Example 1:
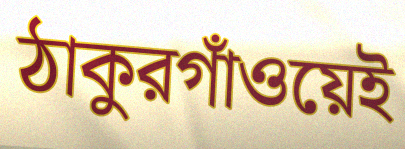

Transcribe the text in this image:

ঠাকুরগাঁওয়েই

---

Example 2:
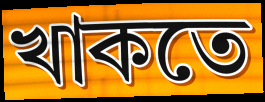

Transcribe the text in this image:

খাকতে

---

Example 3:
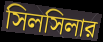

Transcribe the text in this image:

সিলসিলার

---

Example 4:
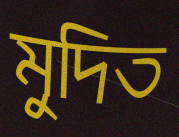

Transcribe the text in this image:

মুদিত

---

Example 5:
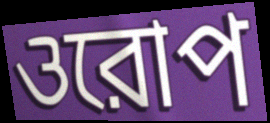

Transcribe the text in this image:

ওরোপ